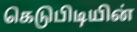
கெடுபிடியின்